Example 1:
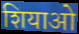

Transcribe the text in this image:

शियाओ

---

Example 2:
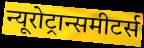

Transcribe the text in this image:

न्यूरोट्रान्समीटर्स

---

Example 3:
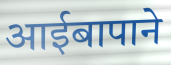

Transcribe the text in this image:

आईबापाने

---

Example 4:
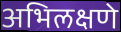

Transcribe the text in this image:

अभिलक्षणे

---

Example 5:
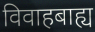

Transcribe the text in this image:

विवाहबाह्य